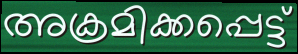
അക്രമിക്കപ്പെട്ട്